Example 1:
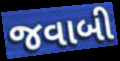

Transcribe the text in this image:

જવાબી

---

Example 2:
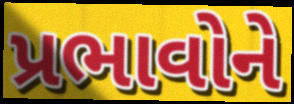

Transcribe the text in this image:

પ્રભાવોને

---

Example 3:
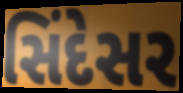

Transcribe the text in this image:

સિંદેસર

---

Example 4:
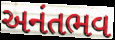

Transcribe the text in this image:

અનંતભવ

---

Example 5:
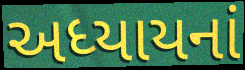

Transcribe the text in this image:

અધ્યાયનાં